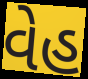
વેહ